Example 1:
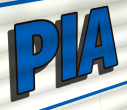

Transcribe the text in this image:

PIA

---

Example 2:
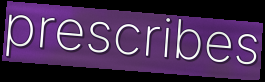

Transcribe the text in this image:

prescribes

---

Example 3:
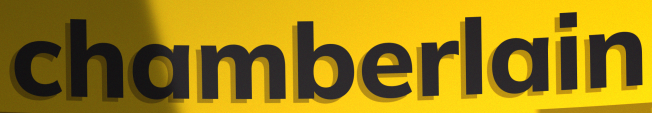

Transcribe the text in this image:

chamberlain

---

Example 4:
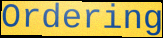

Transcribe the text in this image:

Ordering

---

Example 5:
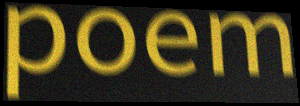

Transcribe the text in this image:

poem